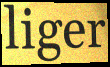
liger